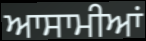
ਆਸਾਮੀਆਂ